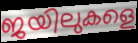
ജയിലുകളെ